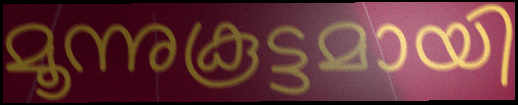
മൂന്നുകൂട്ടമായി